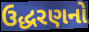
ઉદ્ધરણનો